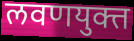
लवणयुक्त